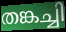
തങ്കച്ചി